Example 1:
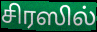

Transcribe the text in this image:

சிரஸில்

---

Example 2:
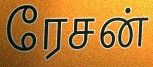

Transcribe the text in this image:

ரேசன்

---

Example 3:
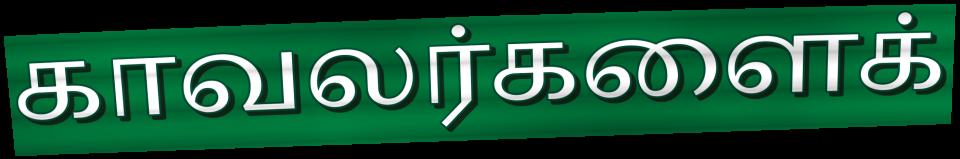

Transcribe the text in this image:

காவலர்களைக்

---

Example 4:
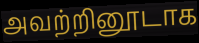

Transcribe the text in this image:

அவற்றினூடாக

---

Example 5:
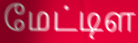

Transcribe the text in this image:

மேட்டிள